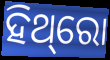
ହିଥ୍‌ରୋ